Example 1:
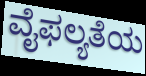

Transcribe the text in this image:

ವೈಫಲ್ಯತೆಯ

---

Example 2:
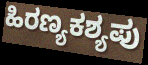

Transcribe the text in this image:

ಹಿರಣ್ಯಕಶ್ಯಪು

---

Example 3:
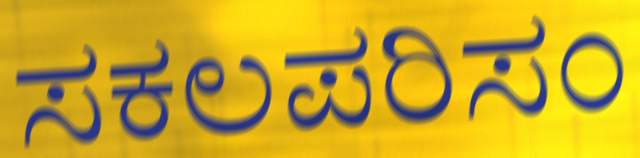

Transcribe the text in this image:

ಸಕಲಪರಿಸಂ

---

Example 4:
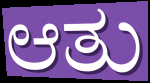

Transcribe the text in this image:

ಆತು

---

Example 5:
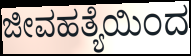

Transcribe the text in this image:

ಜೀವಹತ್ಯೆಯಿಂದ